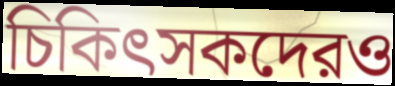
চিকিৎসকদেরও